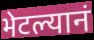
भेटल्यानं